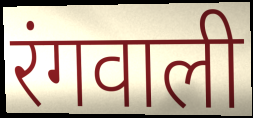
रंगवाली